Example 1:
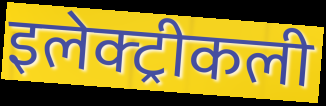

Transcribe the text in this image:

इलेक्ट्रीकली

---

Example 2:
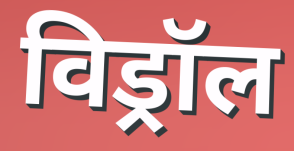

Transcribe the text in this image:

विड्रॉल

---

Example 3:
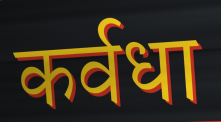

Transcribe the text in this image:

कर्वधा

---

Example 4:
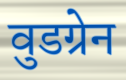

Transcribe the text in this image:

वुडग्रेन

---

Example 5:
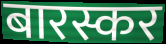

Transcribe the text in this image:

बारस्कर